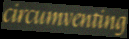
circumventing